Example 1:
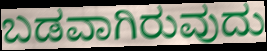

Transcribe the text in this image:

ಬಡವಾಗಿರುವುದು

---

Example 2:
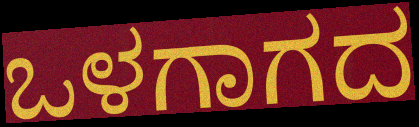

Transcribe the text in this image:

ಒಳಗಾಗದ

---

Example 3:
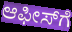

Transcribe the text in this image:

ಆಫೀಸ್‍ಗೆ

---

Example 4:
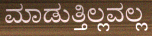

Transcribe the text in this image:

ಮಾಡುತ್ತಿಲ್ಲವಲ್ಲ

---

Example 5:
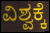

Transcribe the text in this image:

ವಿಶ್ವಕ್ಕೆ